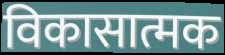
विकासात्मक